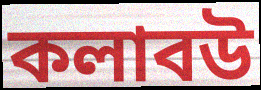
কলাবউ